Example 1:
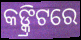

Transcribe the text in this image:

କଙ୍କ୍ରିଟରେ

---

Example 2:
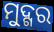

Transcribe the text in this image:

ମୁଦ୍ଗର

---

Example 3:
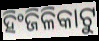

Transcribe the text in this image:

ହିଂଜିଳିକାଟୁ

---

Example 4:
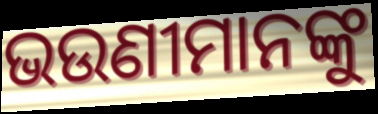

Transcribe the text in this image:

ଭଉଣୀମାନଙ୍କୁ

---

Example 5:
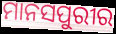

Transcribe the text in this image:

ମାନସପୁରୀର